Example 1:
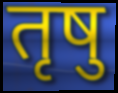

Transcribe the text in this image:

तृषु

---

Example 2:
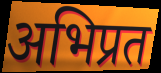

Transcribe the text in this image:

अभिप्रत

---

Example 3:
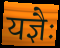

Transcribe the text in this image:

यज्ञैः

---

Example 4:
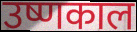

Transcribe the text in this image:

उष्णकाल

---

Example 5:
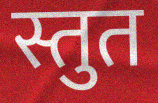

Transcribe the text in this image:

स्तुत